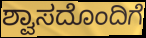
ಶ್ವಾಸದೊಂದಿಗೆ